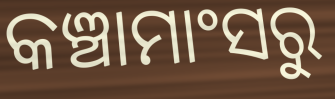
କଞ୍ଚାମାଂସରୁ